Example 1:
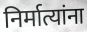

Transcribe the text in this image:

निर्मात्यांना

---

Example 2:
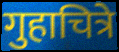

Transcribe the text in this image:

गुहाचित्रे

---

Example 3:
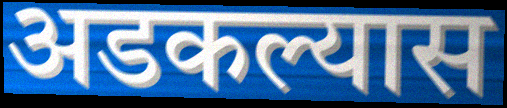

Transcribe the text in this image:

अडकल्यास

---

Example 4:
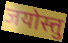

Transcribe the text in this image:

जयोस्त्तु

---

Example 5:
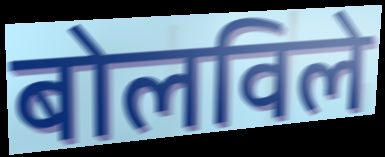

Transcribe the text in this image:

बोलविले